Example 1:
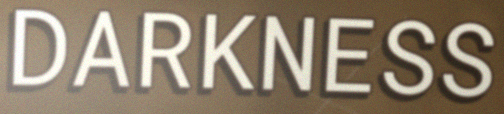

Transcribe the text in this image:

DARKNESS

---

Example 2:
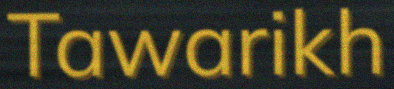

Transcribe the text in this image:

Tawarikh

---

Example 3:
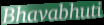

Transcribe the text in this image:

Bhavabhuti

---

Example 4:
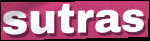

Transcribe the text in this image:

sutras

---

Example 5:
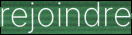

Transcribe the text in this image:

rejoindre